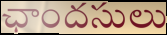
ఛాందసులు